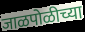
जाळपोळीच्या